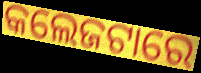
କଲେଜଟାରେ